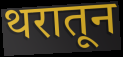
थरातून